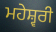
ਮਹੇਸ਼੍ਵਰੀ